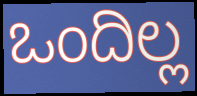
ಒಂದಿಲ್ಲ